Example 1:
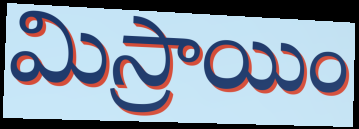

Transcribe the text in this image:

మిస్రాయిం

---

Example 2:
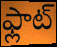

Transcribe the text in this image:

ఫ్లాట్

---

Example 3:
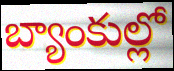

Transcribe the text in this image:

బ్యాంకుల్లో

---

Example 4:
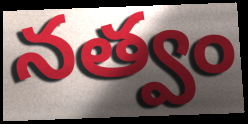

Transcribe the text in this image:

నత్వం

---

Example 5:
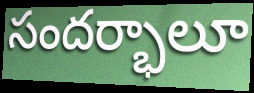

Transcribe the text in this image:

సందర్భాలూ